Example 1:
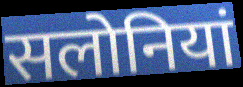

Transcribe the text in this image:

सलोनियां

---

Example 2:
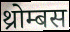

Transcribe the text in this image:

थ्रोम्बस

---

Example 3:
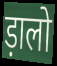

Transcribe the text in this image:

ड़ालो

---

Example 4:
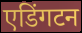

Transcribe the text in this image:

एडिंगटन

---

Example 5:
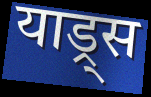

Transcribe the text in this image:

याड्र्स